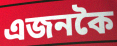
এজনকৈ